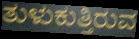
ತುಳುಕುತ್ತಿರುವ